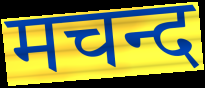
मचन्द